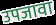
उपजावा